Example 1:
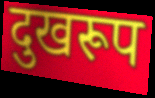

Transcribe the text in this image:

दुखरूप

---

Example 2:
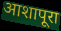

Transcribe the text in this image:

आशापूरा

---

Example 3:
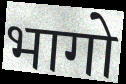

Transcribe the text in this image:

भागो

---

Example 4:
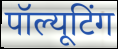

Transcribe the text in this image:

पॉल्यूटिंग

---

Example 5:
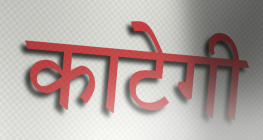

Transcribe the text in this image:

काटेगी